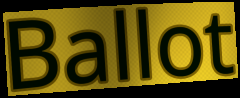
Ballot